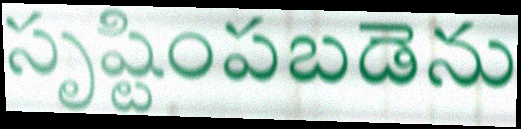
సృష్టింపబడెను